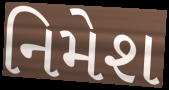
નિમેશ